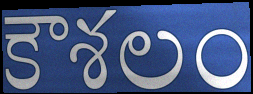
కౌశలం